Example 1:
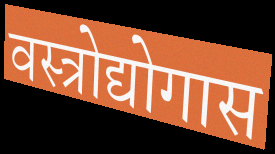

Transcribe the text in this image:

वस्त्रोद्योगास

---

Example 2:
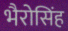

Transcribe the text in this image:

भैरोसिंह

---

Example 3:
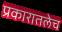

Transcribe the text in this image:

प्रकारातलेच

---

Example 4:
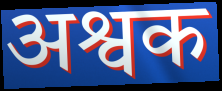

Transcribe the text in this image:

अश्वक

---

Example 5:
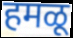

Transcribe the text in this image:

हमळू